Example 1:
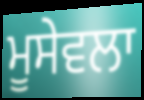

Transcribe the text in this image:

ਮੂਸੇਵਲਾ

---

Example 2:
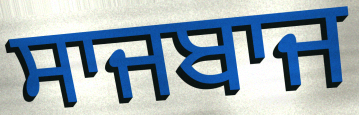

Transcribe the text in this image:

ਸਾਜਬਾਜ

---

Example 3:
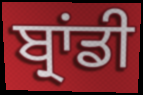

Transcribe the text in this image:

ਬ੍ਰਾਂਡੀ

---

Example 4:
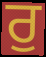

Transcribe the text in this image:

ਰੁ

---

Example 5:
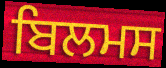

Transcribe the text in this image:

ਬਿਲਮਸ